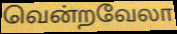
வென்றவேலா